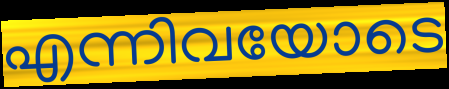
എന്നിവയോടെ